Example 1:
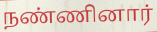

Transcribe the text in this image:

நண்ணினார்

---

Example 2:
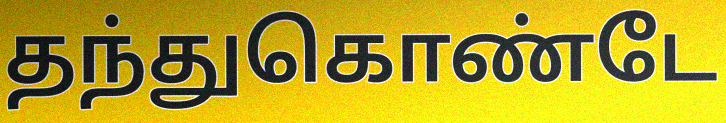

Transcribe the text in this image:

தந்துகொண்டே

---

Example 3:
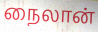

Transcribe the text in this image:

நைலான்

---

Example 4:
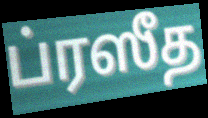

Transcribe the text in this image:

ப்ரஸீத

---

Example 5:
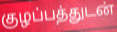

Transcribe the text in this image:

குழப்பத்துடன்